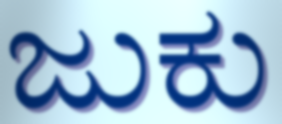
ಜುಕು